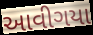
આવીગયા